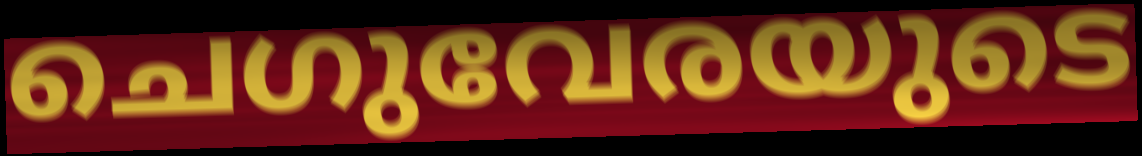
ചെഗുവേരയുടെ